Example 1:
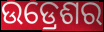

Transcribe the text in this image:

ଉଡ୍ରେଶର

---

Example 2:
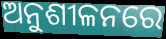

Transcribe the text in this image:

ଅନୁଶୀଳନରେ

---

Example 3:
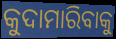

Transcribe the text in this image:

କୁଦାମାରିବାକୁ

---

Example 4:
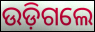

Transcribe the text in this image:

ଉଡ଼ିଗଲେ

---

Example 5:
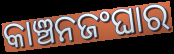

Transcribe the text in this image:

କାଞ୍ଚନଜଂଘାର